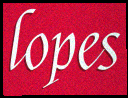
lopes